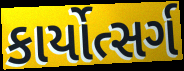
કાર્યોત્સર્ગ